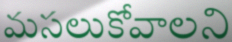
మసలుకోవాలని